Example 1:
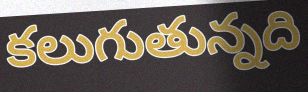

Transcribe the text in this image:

కలుగుతున్నది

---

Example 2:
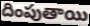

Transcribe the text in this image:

దింపుతాయి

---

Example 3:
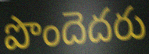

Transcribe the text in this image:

పొందెదరు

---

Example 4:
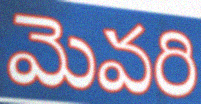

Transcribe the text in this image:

మెవరి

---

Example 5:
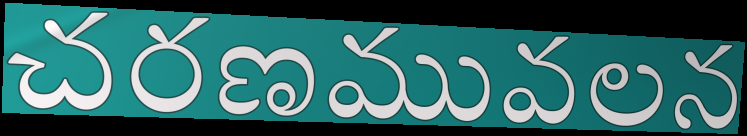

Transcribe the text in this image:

చరణమువలన